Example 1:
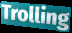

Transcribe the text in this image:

Trolling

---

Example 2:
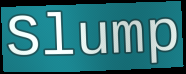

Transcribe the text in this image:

Slump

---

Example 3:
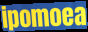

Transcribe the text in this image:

ipomoea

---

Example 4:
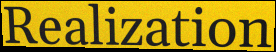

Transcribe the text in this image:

Realization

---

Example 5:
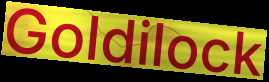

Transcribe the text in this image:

Goldilock